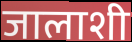
जालाशी